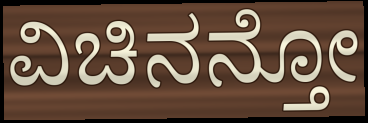
ವಿಚಿನನ್ತೋ